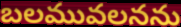
బలమువలనను